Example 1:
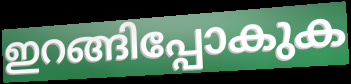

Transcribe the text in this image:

ഇറങ്ങിപ്പോകുക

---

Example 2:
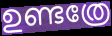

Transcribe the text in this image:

ഉണ്ടത്രേ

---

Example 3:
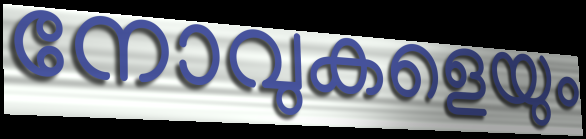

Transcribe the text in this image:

നോവുകളെയും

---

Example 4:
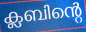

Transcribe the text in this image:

ക്ലബിന്റെ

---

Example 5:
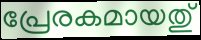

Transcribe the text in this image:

പ്രേരകമായതു്